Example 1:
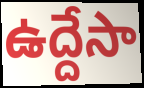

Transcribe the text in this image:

ఉద్దేసా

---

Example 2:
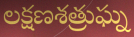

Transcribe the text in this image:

లక్షణశత్రుఘ్న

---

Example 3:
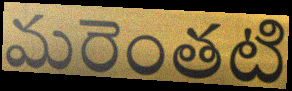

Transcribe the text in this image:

మరెంతటి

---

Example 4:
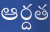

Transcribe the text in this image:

ఆర్దత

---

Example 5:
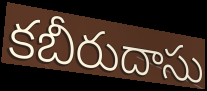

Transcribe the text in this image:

కబీరుదాసు